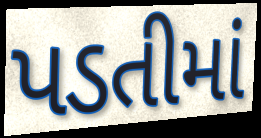
પડતીમાં